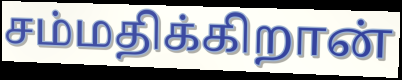
சம்மதிக்கிறான்